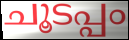
ചൂടപ്പം